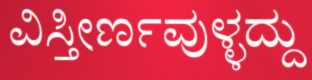
ವಿಸ್ತೀರ್ಣವುಳ್ಳದ್ದು